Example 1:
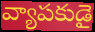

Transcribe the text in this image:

వ్యాపకుడై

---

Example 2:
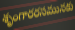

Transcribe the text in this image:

శృంగారరసమునకు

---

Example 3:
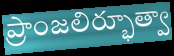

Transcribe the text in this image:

ప్రాంజలిర్భూత్వా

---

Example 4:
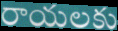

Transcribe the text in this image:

రాయలకు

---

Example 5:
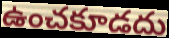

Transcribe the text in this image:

ఉంచకూడదు